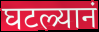
घटल्यानं